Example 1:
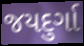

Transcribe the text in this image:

જયદુર્ગા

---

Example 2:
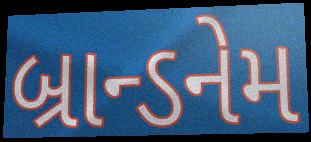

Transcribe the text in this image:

બ્રાન્ડનેમ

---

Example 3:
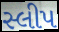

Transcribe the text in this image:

સ્લીપ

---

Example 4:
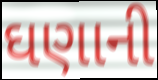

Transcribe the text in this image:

ઘણાની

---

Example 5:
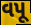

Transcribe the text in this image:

વપૂ